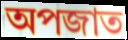
অপজাত